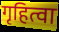
गृहित्वा